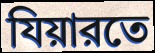
যিয়ারতে